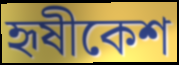
হৃষীকেশ